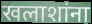
खलाशांना